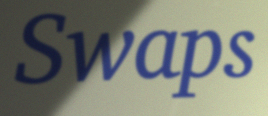
Swaps